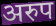
अरुप